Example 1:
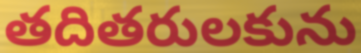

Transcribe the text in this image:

తదితరులకును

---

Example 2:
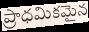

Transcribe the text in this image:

ప్రాధమికమైన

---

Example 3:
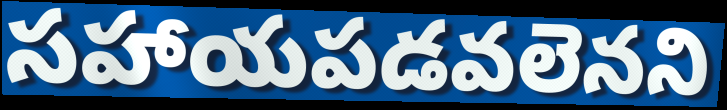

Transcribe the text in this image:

సహాయపడవలెనని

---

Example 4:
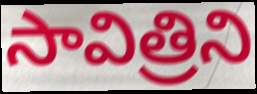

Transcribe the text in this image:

సావిత్రిని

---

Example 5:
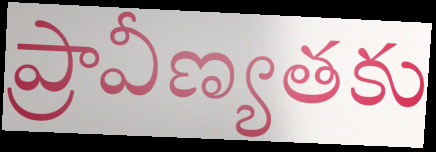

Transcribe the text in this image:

ప్రావీణ్యతకు